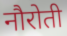
नौरोती